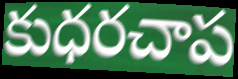
కుధరచాప